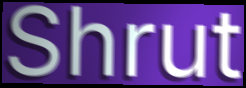
Shrut